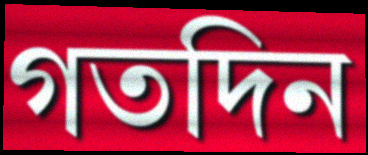
গতদিন